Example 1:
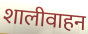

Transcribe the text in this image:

शालीवाहन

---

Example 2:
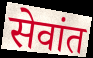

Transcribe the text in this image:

सेवांत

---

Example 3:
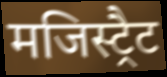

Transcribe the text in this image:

मजिस्ट्रैट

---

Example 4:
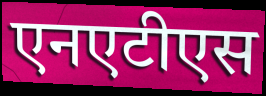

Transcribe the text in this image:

एनएटीएस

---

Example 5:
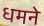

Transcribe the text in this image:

धमने